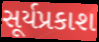
સૂર્યપ્રકાશ